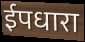
ईपधारा